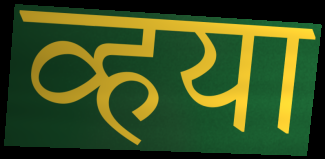
व्हया